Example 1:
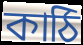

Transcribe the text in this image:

কাঠি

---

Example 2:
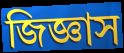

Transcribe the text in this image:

জিজ্ঞাস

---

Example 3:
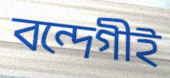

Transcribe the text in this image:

বন্দেগীই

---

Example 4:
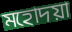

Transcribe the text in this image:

মহোদয়া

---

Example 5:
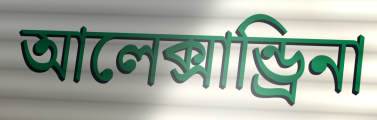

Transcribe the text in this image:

আলেক্সান্ড্রিনা